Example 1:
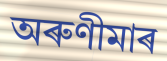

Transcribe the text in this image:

অৰুণীমাৰ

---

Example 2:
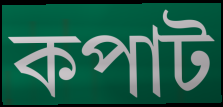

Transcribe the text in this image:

কপাট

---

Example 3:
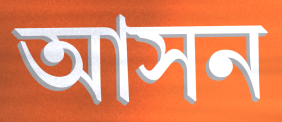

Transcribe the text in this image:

আসন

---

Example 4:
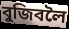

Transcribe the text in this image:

বুজিবলৈ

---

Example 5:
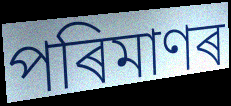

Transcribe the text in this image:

পৰিমাণৰ